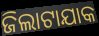
ଜିଲାଟାଯାକ